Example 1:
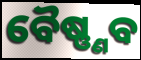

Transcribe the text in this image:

ବୈଷ୍ଣ୍ଣବ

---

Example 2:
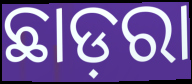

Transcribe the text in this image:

ଛାଡ଼ରା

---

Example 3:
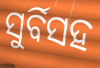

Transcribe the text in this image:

ସୁର୍ବିସହ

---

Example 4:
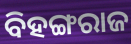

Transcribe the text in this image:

ବିହଙ୍ଗରାଜ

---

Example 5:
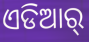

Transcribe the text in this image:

ଏଡିଆର୍